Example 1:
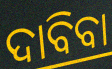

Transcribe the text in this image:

ଦାବିବା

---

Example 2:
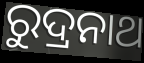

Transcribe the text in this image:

ରୁଦ୍ରନାଥ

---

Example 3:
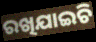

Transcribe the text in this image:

ରଖିଯାଇଚି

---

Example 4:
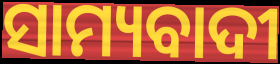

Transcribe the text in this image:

ସାମ୍ୟବାଦୀ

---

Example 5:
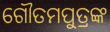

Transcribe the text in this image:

ଗୌତମପୁତ୍ରଙ୍କ